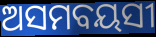
ଅସମବୟସୀ